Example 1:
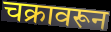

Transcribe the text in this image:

चक्रावरून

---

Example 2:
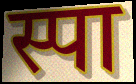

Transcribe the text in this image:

स्पा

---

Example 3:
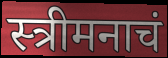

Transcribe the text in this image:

स्त्रीमनाचं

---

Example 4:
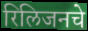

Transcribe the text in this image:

रिलिजनचे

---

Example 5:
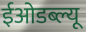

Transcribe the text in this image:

ईओडब्ल्यू